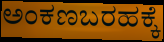
ಅಂಕಣಬರಹಕ್ಕೆ